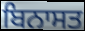
ਬਿਨਾਸਤ